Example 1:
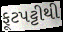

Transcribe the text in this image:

ફૂટપટ્ટીથી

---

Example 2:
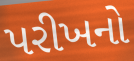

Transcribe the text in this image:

પરીખનો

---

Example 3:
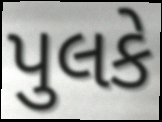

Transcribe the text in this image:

પુલકે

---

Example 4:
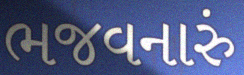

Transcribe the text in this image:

ભજવનારું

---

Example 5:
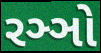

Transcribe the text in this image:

રઞ્ઞો